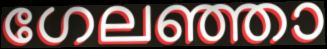
ഗേലഞ്ഞാ